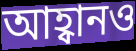
আহ্বানও